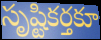
సృష్టికర్తకూ